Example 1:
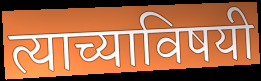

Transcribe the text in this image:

त्याच्याविषयी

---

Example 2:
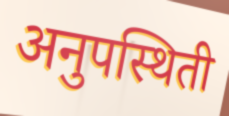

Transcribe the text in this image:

अनुपस्थिती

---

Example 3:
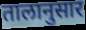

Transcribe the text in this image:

तालानुसार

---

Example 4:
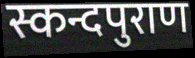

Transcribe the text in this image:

स्कन्दपुराण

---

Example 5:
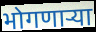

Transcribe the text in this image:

भोगणाऱ्या